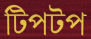
টিপটপ